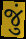
જું